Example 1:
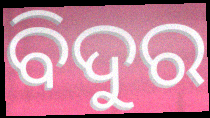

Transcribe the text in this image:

ବିଦୁର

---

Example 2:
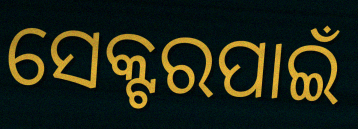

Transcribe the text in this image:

ସେକ୍ଟରପାଇଁ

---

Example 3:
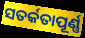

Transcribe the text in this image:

ସତର୍କତାପୂର୍ଣ୍ଣ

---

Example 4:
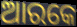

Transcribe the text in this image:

ଆରକେ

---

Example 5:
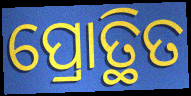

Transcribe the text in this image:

ପ୍ରୋତ୍ଥିତ